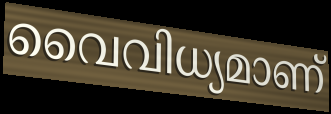
വൈവിധ്യമാണ്